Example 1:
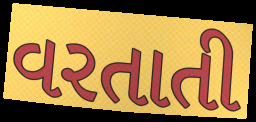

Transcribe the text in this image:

વરતાતી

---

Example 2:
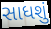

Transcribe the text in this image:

સાધશું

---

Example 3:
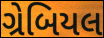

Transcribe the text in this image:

ગ્રેબિયલ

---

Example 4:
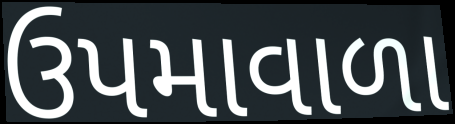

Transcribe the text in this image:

ઉપમાવાળા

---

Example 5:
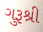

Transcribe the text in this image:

ગુરૂશ્રી